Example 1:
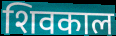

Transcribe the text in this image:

शिवकाल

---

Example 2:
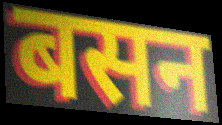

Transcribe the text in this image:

बसन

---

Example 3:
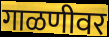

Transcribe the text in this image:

गाळणीवर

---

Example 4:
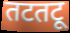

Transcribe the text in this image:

तटतटू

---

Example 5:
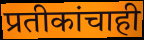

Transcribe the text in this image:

प्रतीकांचाही